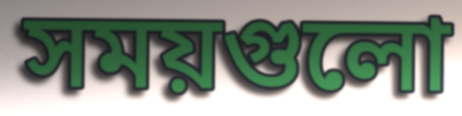
সময়গুলো